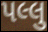
પલ્લુ